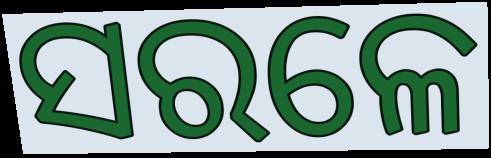
ସରଳେ